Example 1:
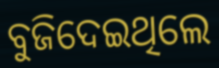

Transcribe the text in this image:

ବୁଜିଦେଇଥିଲେ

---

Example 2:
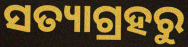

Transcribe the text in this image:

ସତ୍ୟାଗ୍ରହରୁ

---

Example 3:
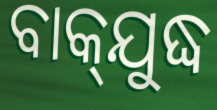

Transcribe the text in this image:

ବାକ୍‌ଯୁଦ୍ଧ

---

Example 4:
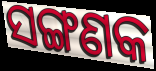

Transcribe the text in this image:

ସଙ୍ଗଣକ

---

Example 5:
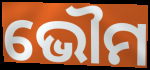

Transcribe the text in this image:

ଭୌମ